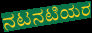
ನಟನಟಿಯರ